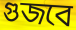
গুজবে